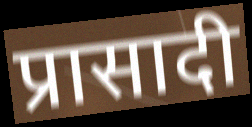
प्रासादी